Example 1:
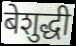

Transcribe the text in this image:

बेशुद्धी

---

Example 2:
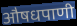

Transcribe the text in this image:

औषधपाणी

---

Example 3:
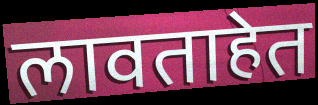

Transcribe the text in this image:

लावताहेत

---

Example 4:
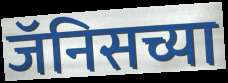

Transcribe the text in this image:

जॅनिसच्या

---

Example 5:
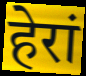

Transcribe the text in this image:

हेरां